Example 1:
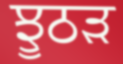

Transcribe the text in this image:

ਝੂਠੜ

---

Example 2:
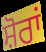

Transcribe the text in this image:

ਸ਼ੋਰਾਂ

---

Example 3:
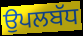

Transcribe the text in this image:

ਉਪਲਬੱਧ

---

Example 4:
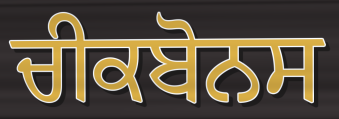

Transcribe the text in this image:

ਚੀਕਬੋਨਸ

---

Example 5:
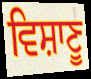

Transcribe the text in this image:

ਵਿਸ਼ਾਣੂ